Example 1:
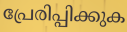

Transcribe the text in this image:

പ്രേരിപ്പിക്കുക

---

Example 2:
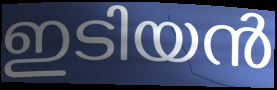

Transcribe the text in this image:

ഇടിയൻ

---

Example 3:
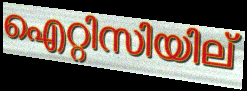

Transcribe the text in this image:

ഐറ്റിസിയില്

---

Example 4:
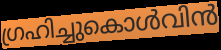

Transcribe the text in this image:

ഗ്രഹിച്ചുകൊൾവിൻ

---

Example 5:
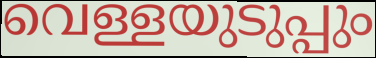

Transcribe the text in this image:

വെള്ളയുടുപ്പും